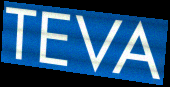
TEVA